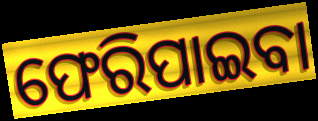
ଫେରିପାଇବା